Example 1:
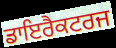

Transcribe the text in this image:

ਡਾਇਰੈਕਟਰਜ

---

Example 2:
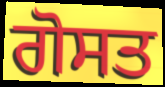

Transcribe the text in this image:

ਗੋਸਤ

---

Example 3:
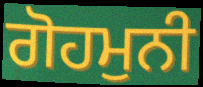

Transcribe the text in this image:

ਗੋਹਮੁਨੀ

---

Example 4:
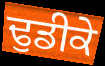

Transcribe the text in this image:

ਢੁਡੀਕੇ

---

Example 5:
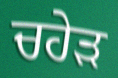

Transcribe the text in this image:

ਚਹੇੜ